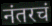
नंतरचं